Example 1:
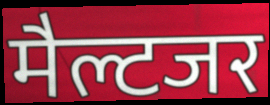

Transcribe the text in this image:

मैल्टजर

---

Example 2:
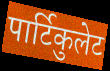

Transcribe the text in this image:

पार्टिकुलेट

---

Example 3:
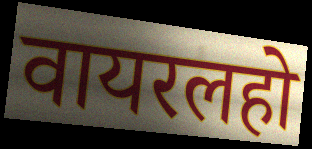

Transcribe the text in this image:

वायरलहो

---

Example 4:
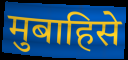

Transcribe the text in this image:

मुबाहिसे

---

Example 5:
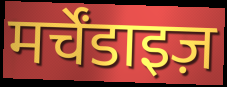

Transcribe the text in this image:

मर्चेंडाइज़